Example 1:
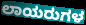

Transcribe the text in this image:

ಲಾಯರುಗಳ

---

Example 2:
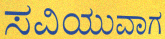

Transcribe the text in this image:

ಸವಿಯುವಾಗ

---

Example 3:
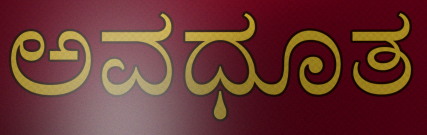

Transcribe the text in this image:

ಅವಧೂತ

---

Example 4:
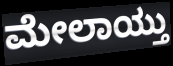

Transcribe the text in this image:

ಮೇಲಾಯ್ತು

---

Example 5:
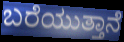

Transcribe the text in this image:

ಬರೆಯುತ್ತಾನೆ